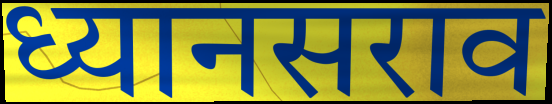
ध्यानसराव